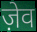
ज़ेव